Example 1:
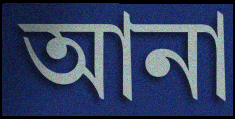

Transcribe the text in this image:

আনা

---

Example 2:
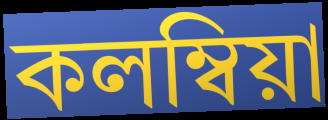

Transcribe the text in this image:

কলম্বিয়া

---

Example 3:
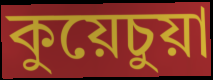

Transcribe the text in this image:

কুয়েচুয়া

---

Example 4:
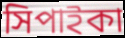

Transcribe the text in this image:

সিপাইকা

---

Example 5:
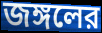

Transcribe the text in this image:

জঙ্গলের